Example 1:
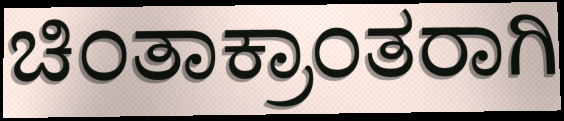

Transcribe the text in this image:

ಚಿಂತಾಕ್ರಾಂತರಾಗಿ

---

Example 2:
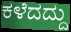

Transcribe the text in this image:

ಕಳೆದದ್ದು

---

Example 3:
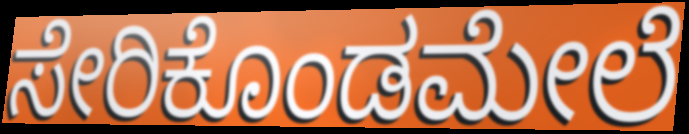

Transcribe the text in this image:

ಸೇರಿಕೊಂಡಮೇಲೆ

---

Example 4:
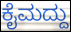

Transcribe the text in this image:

ಕೈಮದ್ದು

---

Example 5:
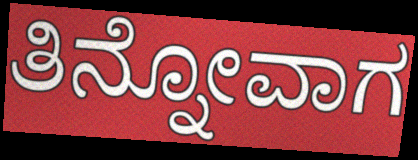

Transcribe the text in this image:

ತಿನ್ನೋವಾಗ